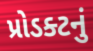
પ્રોડક્ટનું